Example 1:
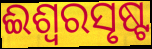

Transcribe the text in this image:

ଈଶ୍ୱରସୃଷ୍ଟ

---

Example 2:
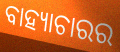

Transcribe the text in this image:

ବାହ୍ୟାଚାରର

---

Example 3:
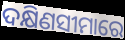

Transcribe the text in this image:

ଦକ୍ଷିଣସୀମାରେ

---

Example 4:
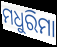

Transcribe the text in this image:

ମଧୁରିମା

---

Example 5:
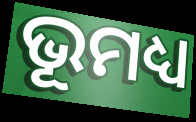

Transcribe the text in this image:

ଭୂମଧ୍ୟ